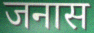
जनास